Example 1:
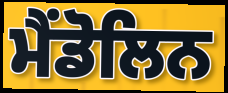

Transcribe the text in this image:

ਮੈਂਡੋਲਿਨ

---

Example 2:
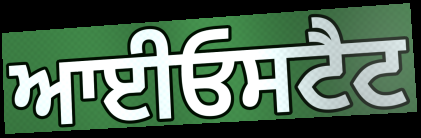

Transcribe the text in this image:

ਆਈਓਸਟੈਟ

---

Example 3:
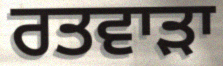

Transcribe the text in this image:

ਰਤਵਾੜਾ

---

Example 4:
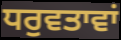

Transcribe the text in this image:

ਧਰੁਵਤਾਵਾਂ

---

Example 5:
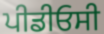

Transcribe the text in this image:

ਪੀਡੀਓਸੀ